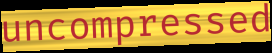
uncompressed